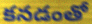
కనడంతో